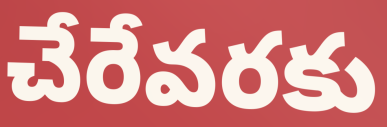
చేరేవరకు